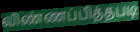
விண்ணப்பித்தபடி